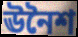
ঊনৈশ